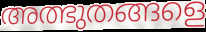
അത്ഭുതങ്ങളെ